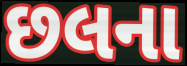
છલના